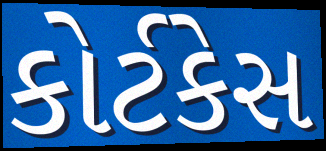
કોર્ટકેસ